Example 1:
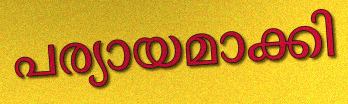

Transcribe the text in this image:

പര്യായമാക്കി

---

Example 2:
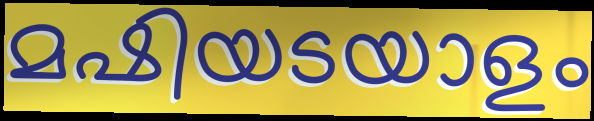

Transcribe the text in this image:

മഷിയടയാളം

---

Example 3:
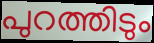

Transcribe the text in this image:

പുറത്തിടും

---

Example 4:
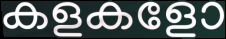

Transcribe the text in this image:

കളകളോ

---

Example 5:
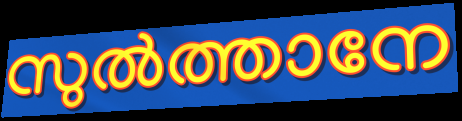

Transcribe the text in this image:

സുൽത്താനേ